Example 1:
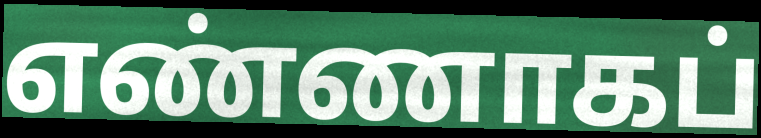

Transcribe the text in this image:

எண்ணாகப்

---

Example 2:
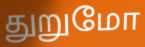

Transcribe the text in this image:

துறுமோ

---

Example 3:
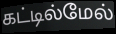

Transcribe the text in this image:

கட்டில்மேல்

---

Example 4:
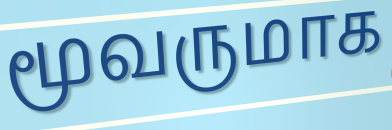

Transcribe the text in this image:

மூவருமாக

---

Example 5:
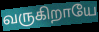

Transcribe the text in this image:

வருகிறாயே